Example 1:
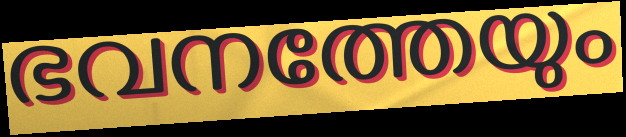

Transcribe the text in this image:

ഭവനത്തേയും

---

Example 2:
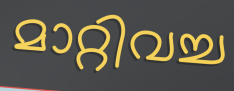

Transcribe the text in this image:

മാറ്റിവച്ച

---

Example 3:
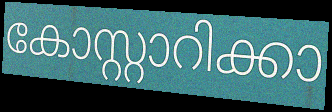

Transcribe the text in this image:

കോസ്റ്റാറിക്കാ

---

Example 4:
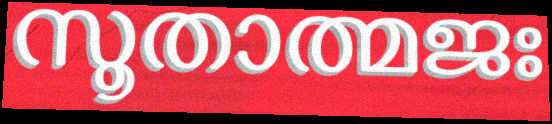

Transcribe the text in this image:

സൂതാത്മജഃ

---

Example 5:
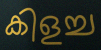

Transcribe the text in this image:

കിളച്ച